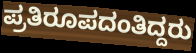
ಪ್ರತಿರೂಪದಂತಿದ್ದರು